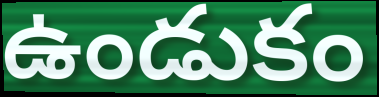
ఉండుకం